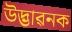
উদ্ভাৱনক